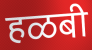
हळबी